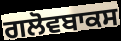
ਗਲੋਵਬਾਕਸ